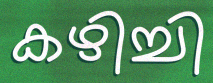
കഴിച്ചി